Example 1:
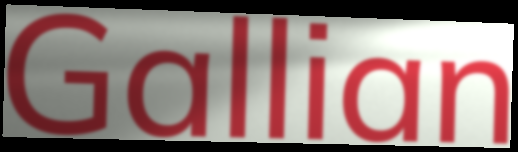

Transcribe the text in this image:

Gallian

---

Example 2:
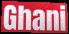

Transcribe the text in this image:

Ghani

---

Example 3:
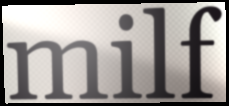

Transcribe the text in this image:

milf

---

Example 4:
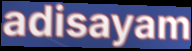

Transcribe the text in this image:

adisayam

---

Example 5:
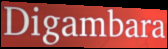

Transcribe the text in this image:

Digambara